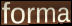
forma